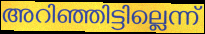
അറിഞ്ഞിട്ടില്ലെന്ന്